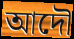
আদৌ